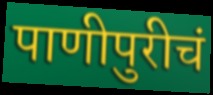
पाणीपुरीचं